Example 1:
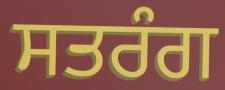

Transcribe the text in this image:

ਸਤਰੰਗ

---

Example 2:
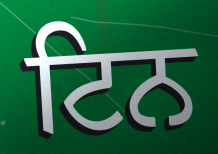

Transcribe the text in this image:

ਟਿਨ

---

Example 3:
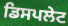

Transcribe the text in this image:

ਡਿਸਪਲੇਟ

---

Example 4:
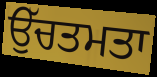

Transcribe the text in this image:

ਉੱਚਤਮਤਾ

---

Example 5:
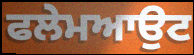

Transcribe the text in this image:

ਫਲੇਮਆਉਟ